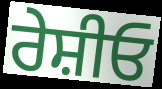
ਰੇਸ਼ੀਓ